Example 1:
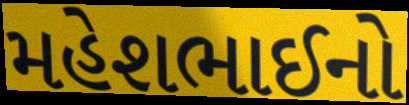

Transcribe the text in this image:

મહેશભાઈનો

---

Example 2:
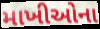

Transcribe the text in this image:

માખીઓના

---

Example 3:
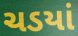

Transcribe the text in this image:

ચડયાં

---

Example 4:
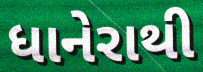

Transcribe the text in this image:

ધાનેરાથી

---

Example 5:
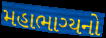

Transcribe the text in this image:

મહાભાગ્યનો